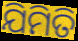
ଯିମିତି